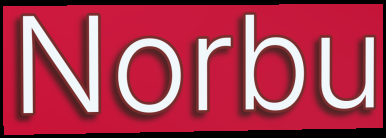
Norbu